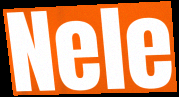
Nele